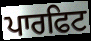
ਪਾਰਫਿਟ